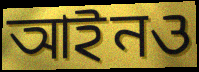
আইনও